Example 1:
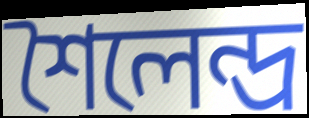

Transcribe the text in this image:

শৈলেন্দ্র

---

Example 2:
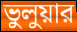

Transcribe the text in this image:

ভুলুয়ার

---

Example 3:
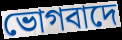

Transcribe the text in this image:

ভোগবাদে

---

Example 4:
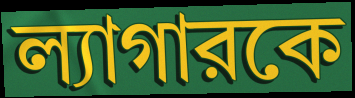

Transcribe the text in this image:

ল্যাগারকে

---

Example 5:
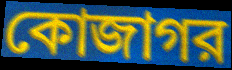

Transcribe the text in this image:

কোজাগর